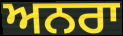
ਅਨਰਾ